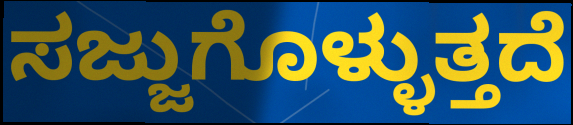
ಸಜ್ಜುಗೊಳ್ಳುತ್ತದೆ